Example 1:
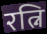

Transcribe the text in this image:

रत्नि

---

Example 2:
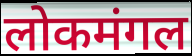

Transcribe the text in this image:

लोकमंगल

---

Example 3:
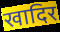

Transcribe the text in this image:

खादिर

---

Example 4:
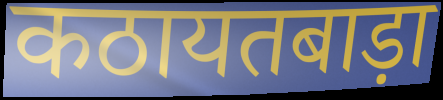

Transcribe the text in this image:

कठायतबाड़ा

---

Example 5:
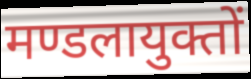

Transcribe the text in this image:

मण्डलायुक्तों